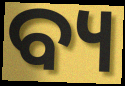
ବ୍ୟ